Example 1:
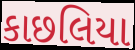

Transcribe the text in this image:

કાછલિયા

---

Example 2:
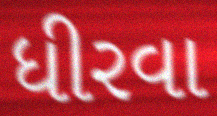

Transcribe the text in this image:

ધીરવા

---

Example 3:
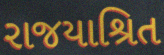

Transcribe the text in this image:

રાજયાશ્રિત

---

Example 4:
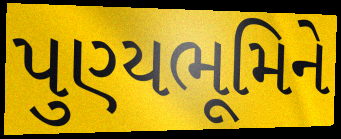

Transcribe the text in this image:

પુણ્યભૂમિને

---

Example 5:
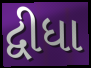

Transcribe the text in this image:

દ્વીધા